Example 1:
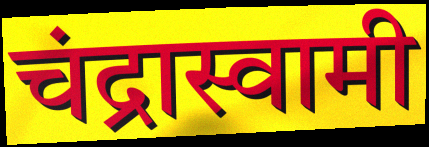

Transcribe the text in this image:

चंद्रास्वामी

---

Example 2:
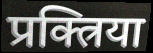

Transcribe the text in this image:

प्रक्त्रिया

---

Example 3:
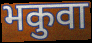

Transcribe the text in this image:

भकुवा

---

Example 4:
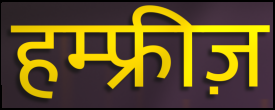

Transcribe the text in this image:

हम्फ्रीज़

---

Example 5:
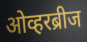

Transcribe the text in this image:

ओव्हरब्रीज